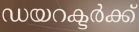
ഡയറക്ടർക്ക്